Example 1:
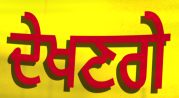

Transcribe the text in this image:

ਦੇਖਣਗੇ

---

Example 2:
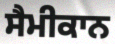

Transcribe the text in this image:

ਸੈਮੀਕਾਨ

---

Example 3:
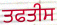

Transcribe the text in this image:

ਤਫਤੀਸ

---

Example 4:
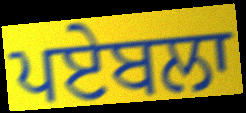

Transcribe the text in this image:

ਪਏਬਲਾ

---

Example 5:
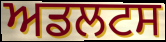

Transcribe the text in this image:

ਅਡਲਟਸ